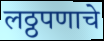
लठ्ठपणाचे